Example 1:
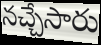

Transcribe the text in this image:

నచ్చేసారు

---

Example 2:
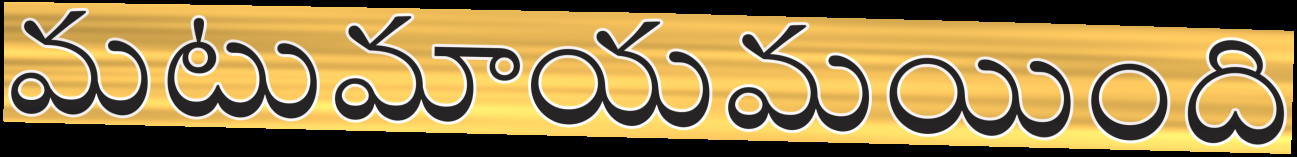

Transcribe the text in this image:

మటుమాయమయింది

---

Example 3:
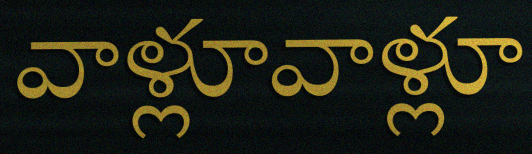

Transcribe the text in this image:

వాళ్లూవాళ్లూ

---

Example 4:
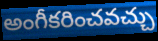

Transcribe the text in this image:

అంగీకరించవచ్చు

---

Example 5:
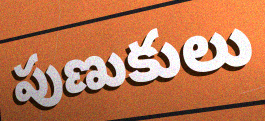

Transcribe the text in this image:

పుణుకులు